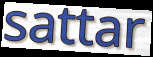
sattar